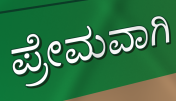
ಪ್ರೇಮವಾಗಿ